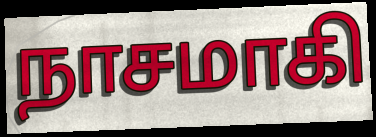
நாசமாகி